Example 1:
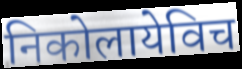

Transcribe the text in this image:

निकोलायेविच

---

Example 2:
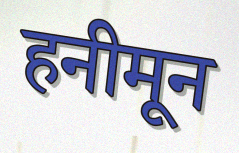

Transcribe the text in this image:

हनीमून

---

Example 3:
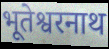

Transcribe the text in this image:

भूतेश्वरनाथ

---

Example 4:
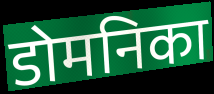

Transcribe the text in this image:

डोमनिका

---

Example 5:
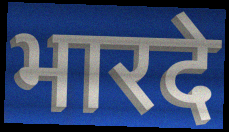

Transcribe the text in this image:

भारदे